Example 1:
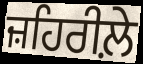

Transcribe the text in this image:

ਜ਼ਹਿਰੀਲ਼ੇ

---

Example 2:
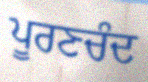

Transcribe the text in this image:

ਪੂਰਣਚੰਦ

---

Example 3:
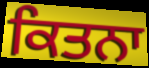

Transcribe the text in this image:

ਕਿਤਨਾ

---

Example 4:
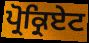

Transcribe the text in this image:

ਪ੍ਰੋਕ੍ਰਿਏਟ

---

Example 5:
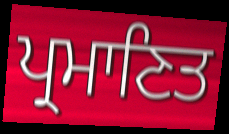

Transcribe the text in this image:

ਪ੍ਰਮਾਣਿਤ